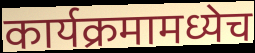
कार्यक्रमामध्येच